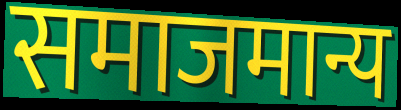
समाजमान्य